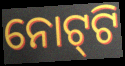
ନୋଟ୍‌ଟି